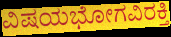
ವಿಷಯಭೋಗವಿರಕ್ತಿ